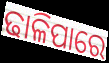
ଢାଳିପାରେ